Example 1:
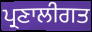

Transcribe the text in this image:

ਪ੍ਰਣਾਲੀਗਤ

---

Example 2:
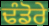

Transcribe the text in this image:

ਢੰਡੋਰੇ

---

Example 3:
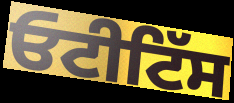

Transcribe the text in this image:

ਓਟੀਟਿੱਸ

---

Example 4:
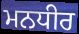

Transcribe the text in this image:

ਮਨਧੀਰ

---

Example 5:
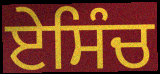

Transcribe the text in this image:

ਏਸਿੰਚ